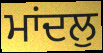
ਮਾਂਦਲੁ